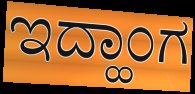
ಇದ್ಹಾಂಗ